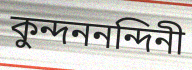
কুন্দননন্দিনী